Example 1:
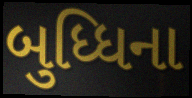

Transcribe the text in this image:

બુધ્ધિના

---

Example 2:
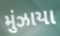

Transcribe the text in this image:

મુંઝાયા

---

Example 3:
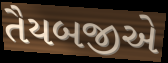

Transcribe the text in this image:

તૈયબજીએ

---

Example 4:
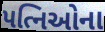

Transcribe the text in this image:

પત્નિઓના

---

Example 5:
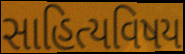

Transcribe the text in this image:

સાહિત્યવિષય